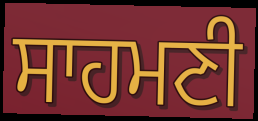
ਸਾਹਮਣੀ